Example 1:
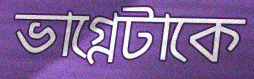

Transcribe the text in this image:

ভাগ্নেটাকে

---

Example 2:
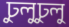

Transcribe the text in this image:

ঢুলুঢুলু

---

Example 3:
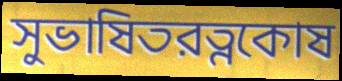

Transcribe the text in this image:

সুভাষিতরত্নকোষ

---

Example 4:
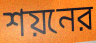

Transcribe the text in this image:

শয়নের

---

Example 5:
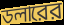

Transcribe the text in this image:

ডলারের